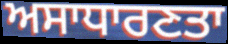
ਅਸਾਧਾਰਣਤਾ